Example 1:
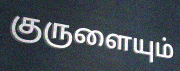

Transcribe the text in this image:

குருளையும்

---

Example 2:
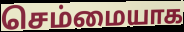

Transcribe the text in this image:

செம்மையாக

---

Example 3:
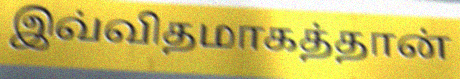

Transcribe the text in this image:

இவ்விதமாகத்தான்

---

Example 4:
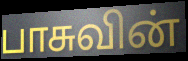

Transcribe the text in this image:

பாசுவின்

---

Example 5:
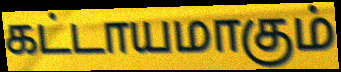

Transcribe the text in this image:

கட்டாயமாகும்